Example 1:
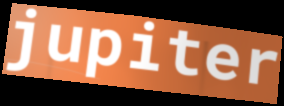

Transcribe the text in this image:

jupiter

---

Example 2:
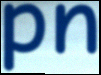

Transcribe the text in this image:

pn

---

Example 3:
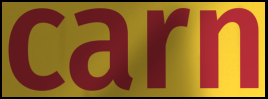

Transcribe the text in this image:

carn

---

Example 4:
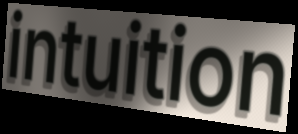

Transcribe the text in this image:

intuition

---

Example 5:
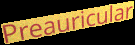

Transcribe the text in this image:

Preauricular